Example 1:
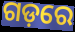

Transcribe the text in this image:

ଗଡ଼ରେ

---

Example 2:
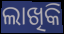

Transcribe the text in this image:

ଲାଖିକି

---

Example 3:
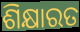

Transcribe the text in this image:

ଶିକ୍ଷାରତ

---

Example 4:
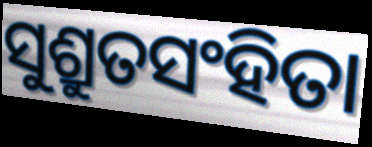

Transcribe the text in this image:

ସୁଶ୍ରୁତସଂହିତା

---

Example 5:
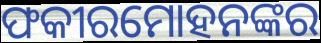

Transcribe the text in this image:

ଫକୀରମୋହନଙ୍କର